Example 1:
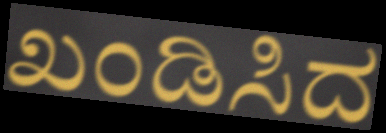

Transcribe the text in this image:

ಖಂಡಿಸಿದ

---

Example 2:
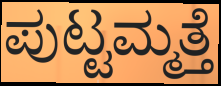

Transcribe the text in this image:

ಪುಟ್ಟಮ್ಮತ್ತೆ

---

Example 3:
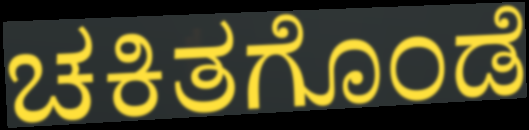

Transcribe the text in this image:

ಚಕಿತಗೊಂಡೆ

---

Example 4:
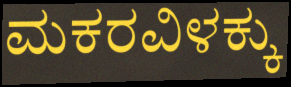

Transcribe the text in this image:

ಮಕರವಿಳಕ್ಕು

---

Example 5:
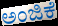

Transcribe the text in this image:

ಅಂಜಿಕೆ